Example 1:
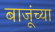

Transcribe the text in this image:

बाजूंच्या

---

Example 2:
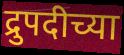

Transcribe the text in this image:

द्रुपदीच्या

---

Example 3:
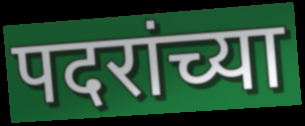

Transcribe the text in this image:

पदरांच्या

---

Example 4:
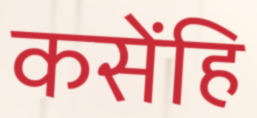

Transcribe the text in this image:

कसेंहि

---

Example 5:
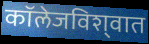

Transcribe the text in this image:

कॉलेजविश्वात